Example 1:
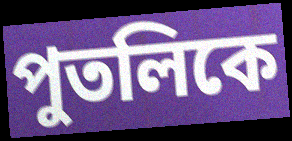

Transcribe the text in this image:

পুতলিকে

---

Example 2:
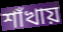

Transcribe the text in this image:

শাঁখায়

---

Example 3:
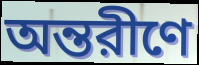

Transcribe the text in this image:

অন্তরীণে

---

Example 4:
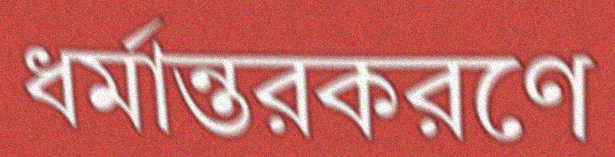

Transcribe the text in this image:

ধর্মান্তরকরণে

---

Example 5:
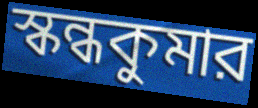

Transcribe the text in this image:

স্কন্ধকুমার